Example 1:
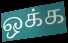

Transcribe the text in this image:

ஒக்க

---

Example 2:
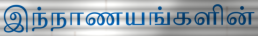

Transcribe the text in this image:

இந்நாணயங்களின்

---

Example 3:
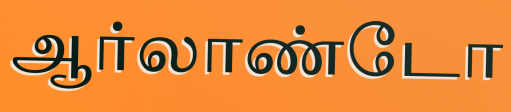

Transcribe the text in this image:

ஆர்லாண்டோ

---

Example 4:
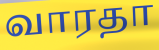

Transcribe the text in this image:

வாரதா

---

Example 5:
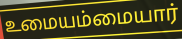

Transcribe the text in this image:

உமையம்மையார்